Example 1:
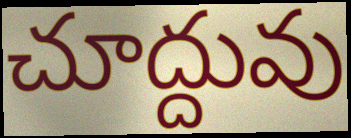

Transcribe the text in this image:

చూద్దువు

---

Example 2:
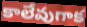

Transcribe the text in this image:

కాలేవుగాక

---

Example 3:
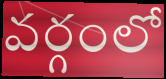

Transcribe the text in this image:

వర్గంలో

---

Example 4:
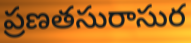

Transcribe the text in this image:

ప్రణతసురాసుర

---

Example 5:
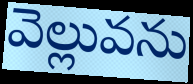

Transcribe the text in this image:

వెల్లువను